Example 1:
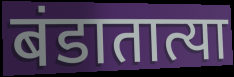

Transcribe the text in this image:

बंडातात्या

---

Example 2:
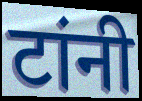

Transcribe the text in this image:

टांनी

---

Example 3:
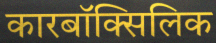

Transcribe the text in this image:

कारबॉक्सिलिक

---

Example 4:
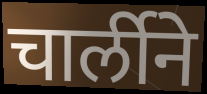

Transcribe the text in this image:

चार्लीने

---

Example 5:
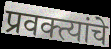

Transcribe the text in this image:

प्रवक्त्यांचे